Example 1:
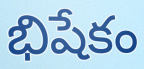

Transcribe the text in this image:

భిషేకం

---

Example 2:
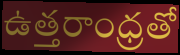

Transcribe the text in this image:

ఉత్తరాంధ్రతో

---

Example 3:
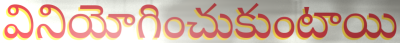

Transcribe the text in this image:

వినియోగించుకుంటాయి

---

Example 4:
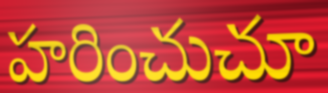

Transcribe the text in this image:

హరించుచూ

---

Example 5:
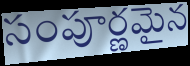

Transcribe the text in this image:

సంపూర్ణమైన